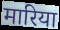
मारिया